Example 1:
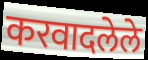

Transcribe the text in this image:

करवादलेले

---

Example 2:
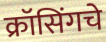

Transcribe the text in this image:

क्रॉसिंगचे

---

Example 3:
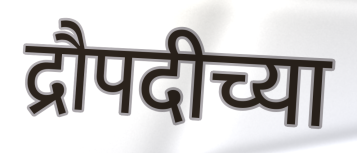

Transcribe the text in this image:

द्रौपदीच्या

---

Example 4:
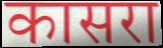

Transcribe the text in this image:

कासरा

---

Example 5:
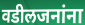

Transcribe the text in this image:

वडीलजनांना